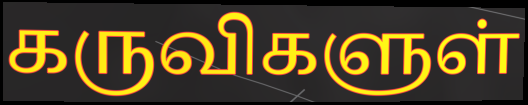
கருவிகளுள்